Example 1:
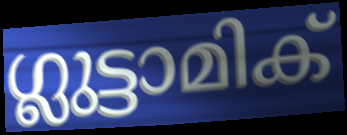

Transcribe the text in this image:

ഗ്ലുട്ടാമിക്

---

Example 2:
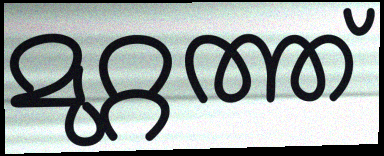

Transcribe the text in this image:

മുറ്റത്ത്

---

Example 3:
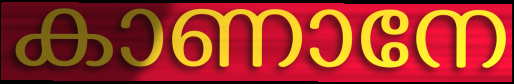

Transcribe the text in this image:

കാണാനേ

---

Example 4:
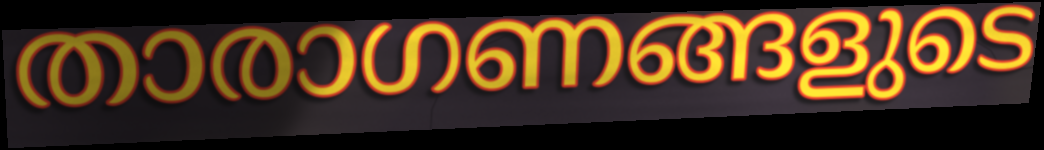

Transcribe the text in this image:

താരാഗണങ്ങളുടെ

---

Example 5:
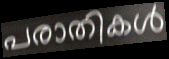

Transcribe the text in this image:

പരാതികൾ